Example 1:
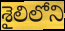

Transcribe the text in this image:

శైలిలోని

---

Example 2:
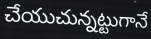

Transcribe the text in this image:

చేయుచున్నట్టుగానే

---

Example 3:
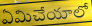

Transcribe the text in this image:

ఏమిచేయాలో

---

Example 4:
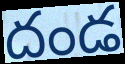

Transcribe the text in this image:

దండ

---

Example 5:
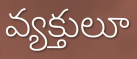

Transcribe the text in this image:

వ్యక్తులూ